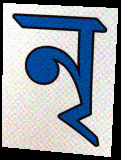
নৃ